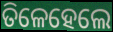
ତିଳେହେଲେ